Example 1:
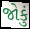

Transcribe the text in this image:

જોકું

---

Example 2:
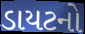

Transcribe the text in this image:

ડાયટનો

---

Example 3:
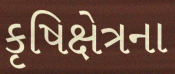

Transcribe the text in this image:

કૃષિક્ષેત્રના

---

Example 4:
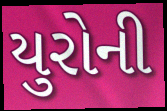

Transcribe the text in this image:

યુરોની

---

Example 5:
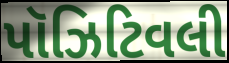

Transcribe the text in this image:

પૉઝિટિવલી